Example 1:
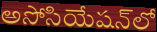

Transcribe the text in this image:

అసోసియేషన్‌లో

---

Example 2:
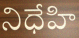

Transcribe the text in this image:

నిధేహి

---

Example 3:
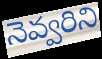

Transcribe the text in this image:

నెవ్వరిని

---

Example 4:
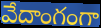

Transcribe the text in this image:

వేదాంగంగా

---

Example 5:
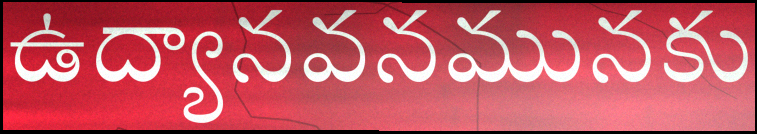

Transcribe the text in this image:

ఉద్యానవనమునకు